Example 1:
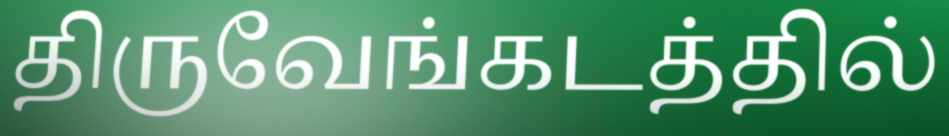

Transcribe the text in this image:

திருவேங்கடத்தில்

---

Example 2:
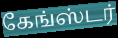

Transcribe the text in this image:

கேங்ஸ்டர்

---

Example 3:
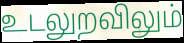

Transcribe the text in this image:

உடலுறவிலும்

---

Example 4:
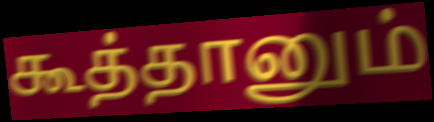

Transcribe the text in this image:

கூத்தானும்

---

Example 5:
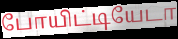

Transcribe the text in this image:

போயிட்டியேடா